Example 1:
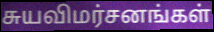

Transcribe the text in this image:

சுயவிமர்சனங்கள்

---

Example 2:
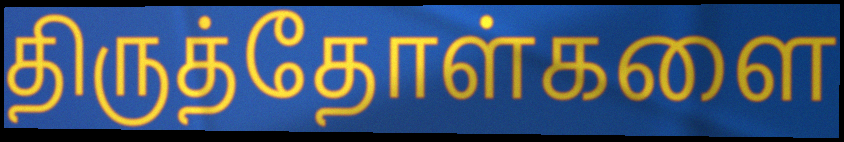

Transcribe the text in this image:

திருத்தோள்களை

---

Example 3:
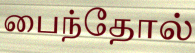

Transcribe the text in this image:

பைந்தோல்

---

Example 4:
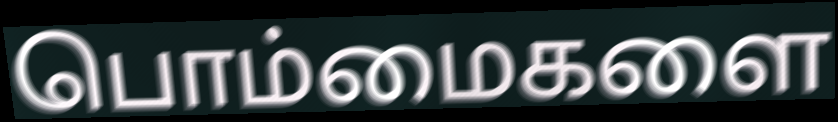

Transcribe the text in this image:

பொம்மைகளை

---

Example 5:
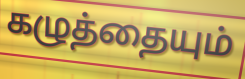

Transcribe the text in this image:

கழுத்தையும்